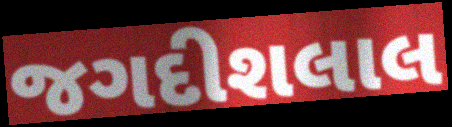
જગદીશલાલ